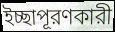
ইচ্ছাপূরণকারী